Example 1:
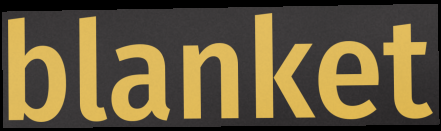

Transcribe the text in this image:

blanket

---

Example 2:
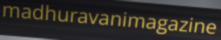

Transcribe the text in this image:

madhuravanimagazine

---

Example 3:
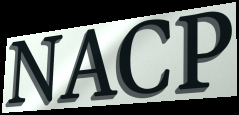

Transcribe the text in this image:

NACP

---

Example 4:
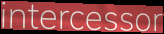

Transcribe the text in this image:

intercessor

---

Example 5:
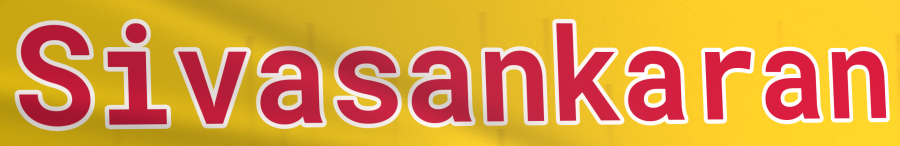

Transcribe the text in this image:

Sivasankaran